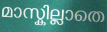
മാസ്കില്ലാതെ